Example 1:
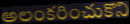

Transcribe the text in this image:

అలంకరించుకొని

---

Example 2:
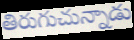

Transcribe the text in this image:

తిరుగుచున్నాడు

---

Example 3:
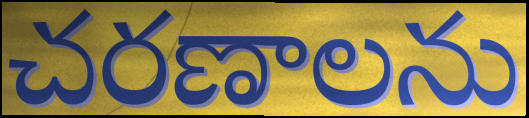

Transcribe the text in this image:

చరణాలను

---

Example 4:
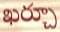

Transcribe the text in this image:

ఖర్చూ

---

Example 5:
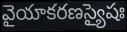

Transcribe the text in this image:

వైయాకరణస్యైషః